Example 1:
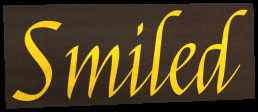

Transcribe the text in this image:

Smiled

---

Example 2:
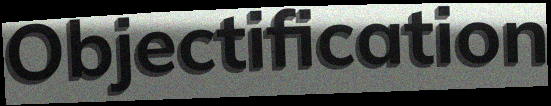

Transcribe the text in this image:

Objectification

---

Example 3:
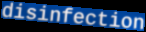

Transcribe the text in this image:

disinfection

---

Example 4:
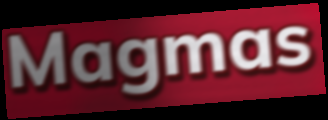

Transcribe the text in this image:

Magmas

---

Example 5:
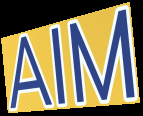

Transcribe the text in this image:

AIM